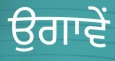
ਉਗਾਵੇਂ